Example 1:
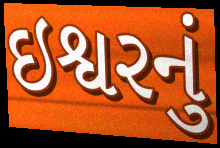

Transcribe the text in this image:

ઇશ્વરનું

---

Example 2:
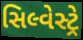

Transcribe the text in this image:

સિલ્વેસ્ટ્રે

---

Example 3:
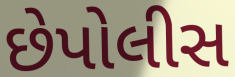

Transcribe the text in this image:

છેપોલીસ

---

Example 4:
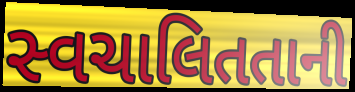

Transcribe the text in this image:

સ્વચાલિતતાની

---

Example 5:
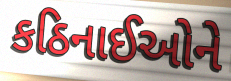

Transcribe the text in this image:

કઠિનાઈઓને